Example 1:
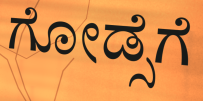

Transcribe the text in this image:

ಗೋಡ್ಸೆಗೆ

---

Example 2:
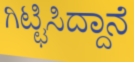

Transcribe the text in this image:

ಗಿಟ್ಟಿಸಿದ್ದಾನೆ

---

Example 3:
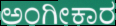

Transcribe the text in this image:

ಅಂಗೀಕಾರ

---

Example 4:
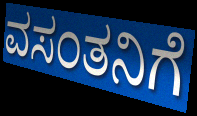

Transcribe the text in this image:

ವಸಂತನಿಗೆ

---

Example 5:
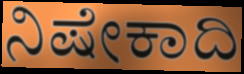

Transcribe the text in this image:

ನಿಷೇಕಾದಿ